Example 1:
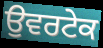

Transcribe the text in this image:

ਉਵਰਟੇਕ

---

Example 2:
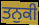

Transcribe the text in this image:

ਤਨੁਕੀ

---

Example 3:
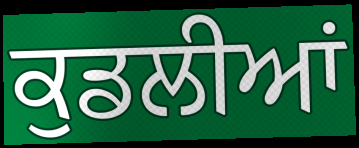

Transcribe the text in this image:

ਕੁਡਲੀਆਂ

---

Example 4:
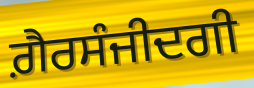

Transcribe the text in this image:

ਗ਼ੈਰਸੰਜੀਦਗੀ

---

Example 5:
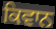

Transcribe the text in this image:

ਕਿਵਾਨ